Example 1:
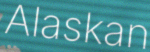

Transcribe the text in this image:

Alaskan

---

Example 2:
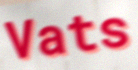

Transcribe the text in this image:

Vats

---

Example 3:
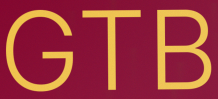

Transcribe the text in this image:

GTB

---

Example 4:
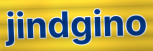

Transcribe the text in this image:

jindgino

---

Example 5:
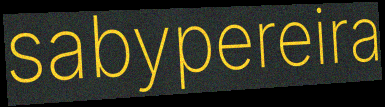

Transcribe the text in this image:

sabypereira